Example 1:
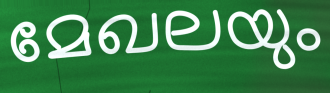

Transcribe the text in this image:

മേഖലയും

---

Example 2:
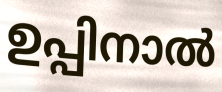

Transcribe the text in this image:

ഉപ്പിനാൽ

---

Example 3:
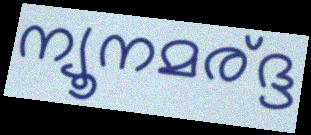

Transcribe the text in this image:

ന്യൂനമര്ദ്ദ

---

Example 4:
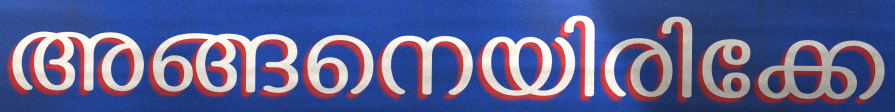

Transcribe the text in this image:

അങ്ങനെയിരിക്കേ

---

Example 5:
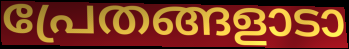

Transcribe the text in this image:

പ്രേതങ്ങളാടാ